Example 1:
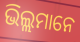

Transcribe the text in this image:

ଭିଲ୍ଲମାନେ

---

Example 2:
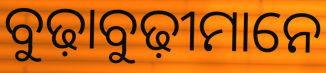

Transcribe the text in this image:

ବୁଢ଼ାବୁଢ଼ୀମାନେ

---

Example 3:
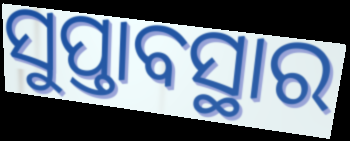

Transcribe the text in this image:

ସୁପ୍ତାବସ୍ଥାର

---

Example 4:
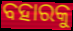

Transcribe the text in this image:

ବହାରକୁ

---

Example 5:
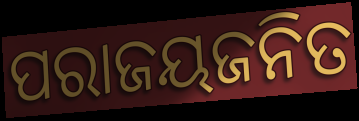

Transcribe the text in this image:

ପରାଜୟଜନିତ